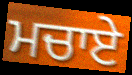
ਮਚਾਏ